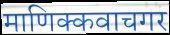
माणिक्कवाचगर